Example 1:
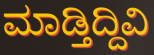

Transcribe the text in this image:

ಮಾಡ್ತಿದ್ದಿವಿ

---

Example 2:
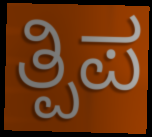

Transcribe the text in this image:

ತ್ಪಿಪ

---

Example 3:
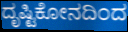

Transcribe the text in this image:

ದೃಷ್ಟಿಕೋನದಿಂದ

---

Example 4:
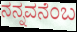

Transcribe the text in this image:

ನನ್ನವನೆಂಬ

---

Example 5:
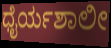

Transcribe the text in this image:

ಧೈರ್ಯಶಾಲೀ